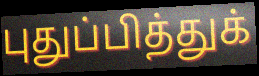
புதுப்பித்துக்